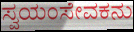
ಸ್ವಯಂಸೇವಕನು